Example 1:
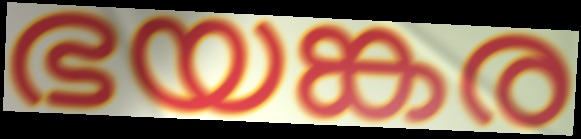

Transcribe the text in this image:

ഭയങ്കര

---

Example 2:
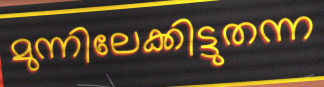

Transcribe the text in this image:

മുന്നിലേക്കിട്ടുതന്ന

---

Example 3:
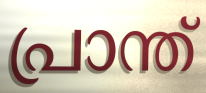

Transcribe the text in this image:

പ്രാന്ത്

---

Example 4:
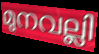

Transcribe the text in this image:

മുനവല്ലി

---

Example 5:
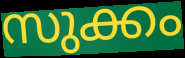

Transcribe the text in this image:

സുക്കം